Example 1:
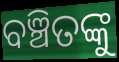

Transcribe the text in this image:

ବଞ୍ଚିତଙ୍କୁ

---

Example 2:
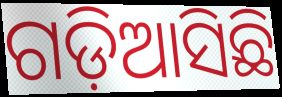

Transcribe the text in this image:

ଗଡ଼ିଆସିଛି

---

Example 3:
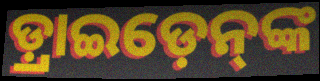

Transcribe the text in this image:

ଡ଼୍ରାଇଡ଼େନ୍‌ଙ୍କ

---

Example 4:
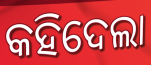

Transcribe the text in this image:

କହିଦେଲା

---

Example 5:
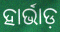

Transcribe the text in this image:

ହାର୍ଭାଡ଼